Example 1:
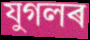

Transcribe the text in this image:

যুগলৰ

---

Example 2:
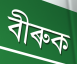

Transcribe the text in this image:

বীৰুক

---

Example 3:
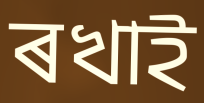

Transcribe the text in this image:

ৰখাই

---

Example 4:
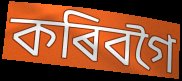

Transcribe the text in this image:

কৰিবগৈ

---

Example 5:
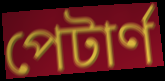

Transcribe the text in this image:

পেটাৰ্ণ